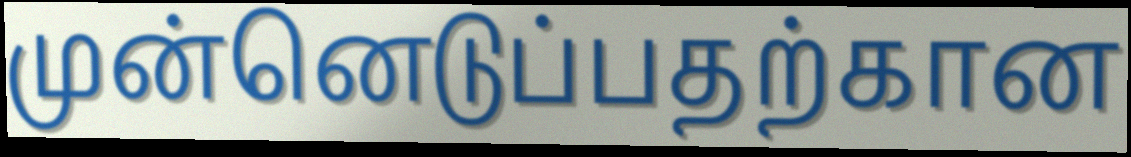
முன்னெடுப்பதற்கான